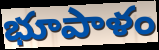
భూపాళం